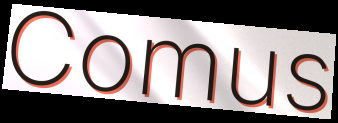
Comus